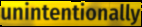
unintentionally